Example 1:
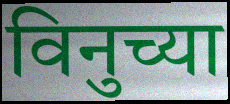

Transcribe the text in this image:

विनुच्या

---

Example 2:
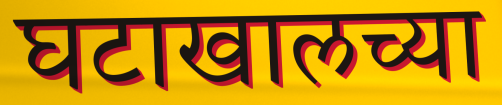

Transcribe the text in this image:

घटाखालच्या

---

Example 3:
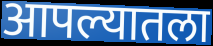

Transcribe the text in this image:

आपल्यातला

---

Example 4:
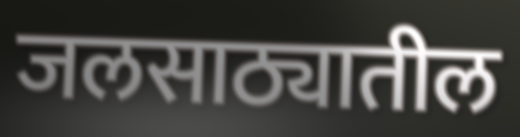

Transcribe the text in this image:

जलसाठ्यातील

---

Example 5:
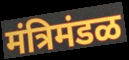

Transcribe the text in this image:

मंत्रिमंडळ